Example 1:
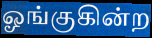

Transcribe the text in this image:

ஓங்குகின்ற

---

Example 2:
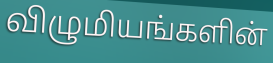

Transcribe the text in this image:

விழுமியங்களின்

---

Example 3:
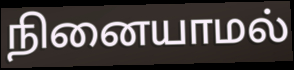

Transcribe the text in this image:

நினையாமல்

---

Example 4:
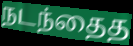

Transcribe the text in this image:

நடந்தைத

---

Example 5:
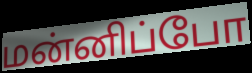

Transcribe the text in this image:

மன்னிப்போ